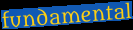
fundamental